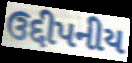
ઉદ્દીપનીય